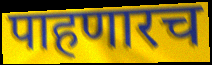
पाहणारच